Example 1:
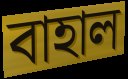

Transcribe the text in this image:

বাহাল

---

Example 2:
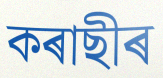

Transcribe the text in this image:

কৰাছীৰ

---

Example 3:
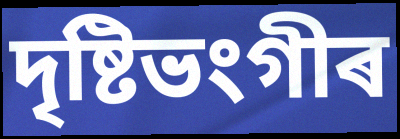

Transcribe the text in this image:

দৃষ্টিভংগীৰ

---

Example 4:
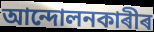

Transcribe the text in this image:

আন্দোলনকাৰীৰ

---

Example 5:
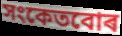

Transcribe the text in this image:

সংকেতবোৰ